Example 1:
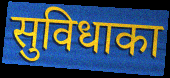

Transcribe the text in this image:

सुविधाका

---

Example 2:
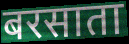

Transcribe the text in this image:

बरसाता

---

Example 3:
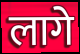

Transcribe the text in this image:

लागे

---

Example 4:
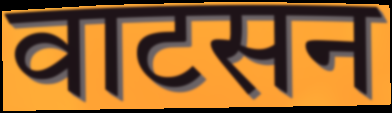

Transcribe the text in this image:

वाटसन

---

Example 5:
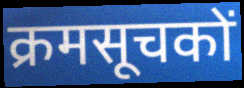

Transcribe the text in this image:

क्रमसूचकों